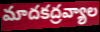
మాదకద్రవ్యాల